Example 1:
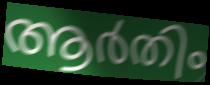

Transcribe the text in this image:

ആർതിം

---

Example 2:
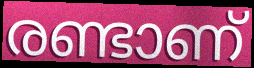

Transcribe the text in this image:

രണ്ടാണ്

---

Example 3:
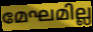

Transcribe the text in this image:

മേഘമില്ല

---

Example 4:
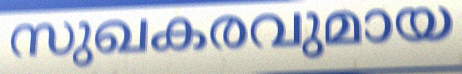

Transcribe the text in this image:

സുഖകരവുമായ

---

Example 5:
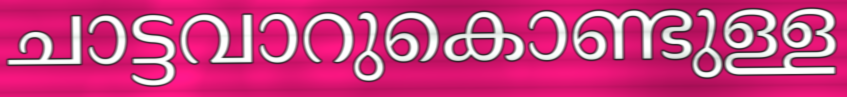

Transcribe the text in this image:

ചാട്ടവാറുകൊണ്ടുള്ള